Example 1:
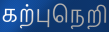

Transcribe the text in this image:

கற்புநெறி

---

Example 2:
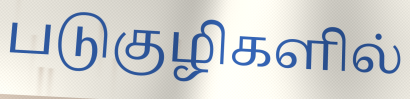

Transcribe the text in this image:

படுகுழிகளில்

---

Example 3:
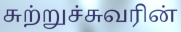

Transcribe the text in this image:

சுற்றுச்சுவரின்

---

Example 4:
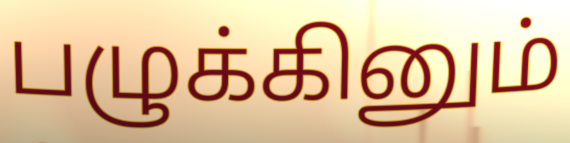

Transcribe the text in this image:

பழுக்கினும்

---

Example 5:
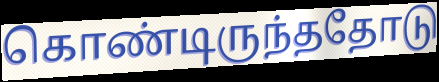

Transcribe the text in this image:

கொண்டிருந்ததோடு